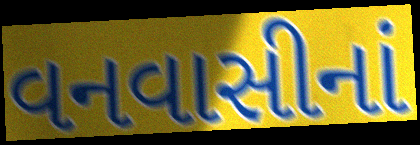
વનવાસીનાં